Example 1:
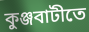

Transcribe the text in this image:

কুঞ্জবাটীতে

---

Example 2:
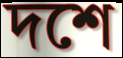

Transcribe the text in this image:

দশে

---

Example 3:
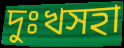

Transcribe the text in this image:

দুঃখসহা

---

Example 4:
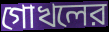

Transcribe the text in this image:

গোখলের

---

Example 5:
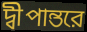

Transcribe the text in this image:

দ্বীপান্তরে